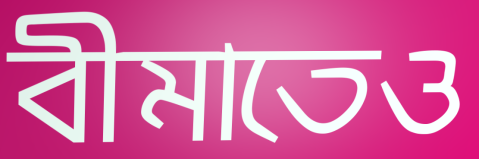
বীমাতেও